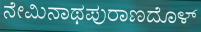
ನೇಮಿನಾಥಪುರಾಣದೊಳ್